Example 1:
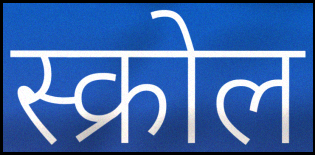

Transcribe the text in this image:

स्क्रोल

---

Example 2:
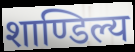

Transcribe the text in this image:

शाण्डिल्य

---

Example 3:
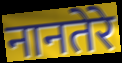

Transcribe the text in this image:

नानतेरे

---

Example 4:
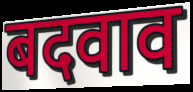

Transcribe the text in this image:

बदवाव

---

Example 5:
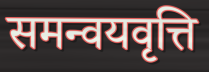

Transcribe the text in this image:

समन्वयवृत्ति